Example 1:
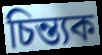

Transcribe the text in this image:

চিন্ত্যক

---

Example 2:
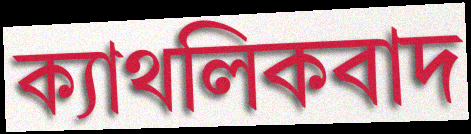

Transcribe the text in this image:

ক্যাথলিকবাদ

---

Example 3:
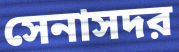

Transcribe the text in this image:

সেনাসদর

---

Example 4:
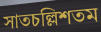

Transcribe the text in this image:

সাতচল্লিশতম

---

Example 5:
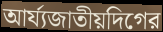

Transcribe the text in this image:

আর্য্যজাতীয়দিগের